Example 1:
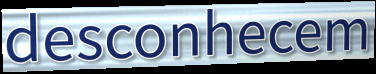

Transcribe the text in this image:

desconhecem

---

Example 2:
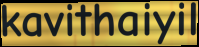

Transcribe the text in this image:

kavithaiyil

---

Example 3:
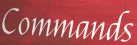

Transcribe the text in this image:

Commands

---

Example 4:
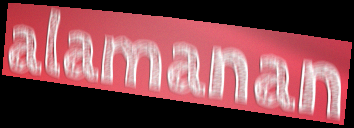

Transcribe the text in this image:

alamanan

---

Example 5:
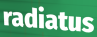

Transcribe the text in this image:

radiatus